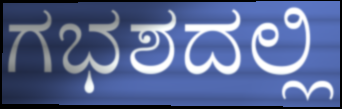
ಗಭಶದಲ್ಲಿ